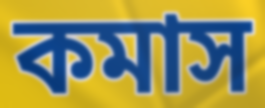
কমাস